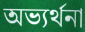
অভ্যর্থনা